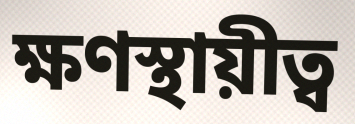
ক্ষণস্থায়ীত্ব